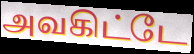
அவகிட்டே